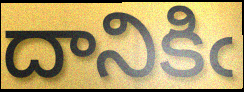
దానికిఁ